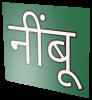
नींबू